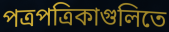
পত্রপত্রিকাগুলিতে